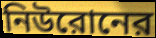
নিউরোনের